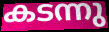
കടന്നു